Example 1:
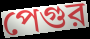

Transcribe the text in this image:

পেগুর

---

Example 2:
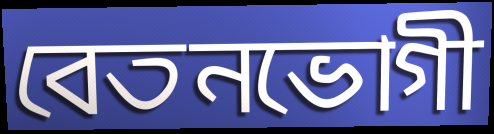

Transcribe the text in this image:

বেতনভোগী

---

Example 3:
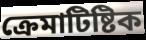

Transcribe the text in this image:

ক্রেমাটিষ্টিক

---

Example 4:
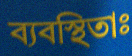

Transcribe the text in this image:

ব্যবস্থিতাঃ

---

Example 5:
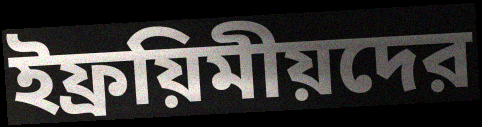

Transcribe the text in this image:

ইফ্রয়িমীয়দের